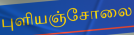
புளியஞ்சோலை